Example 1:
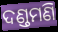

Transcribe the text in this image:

ଦଣ୍ଡମଣି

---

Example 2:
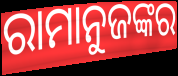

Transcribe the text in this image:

ରାମାନୁଜଙ୍କର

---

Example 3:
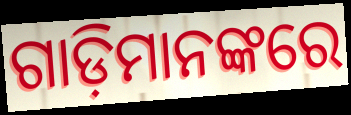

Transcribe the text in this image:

ଗାଡ଼ିମାନଙ୍କରେ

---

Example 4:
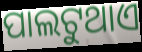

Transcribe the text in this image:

ପାଲଟୁଥାଏ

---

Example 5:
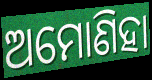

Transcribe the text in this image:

ଅମୋଣିହା